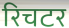
रिचटर